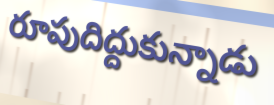
రూపుదిద్దుకున్నాడు